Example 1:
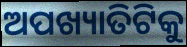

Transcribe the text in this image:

ଅପଖ୍ୟାତିଟିକୁ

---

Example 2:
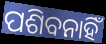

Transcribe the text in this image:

ପଶିବନାହିଁ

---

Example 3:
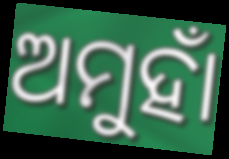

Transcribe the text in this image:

ଅମୁହାଁ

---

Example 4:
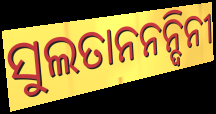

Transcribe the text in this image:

ସୁଲତାନନନ୍ଦିନୀ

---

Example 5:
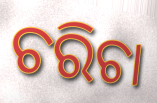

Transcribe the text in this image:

ଚରିଚା